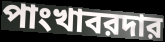
পাংখাবরদার